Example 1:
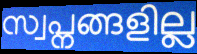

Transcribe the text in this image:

സ്വപ്നങ്ങളില്ല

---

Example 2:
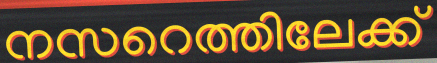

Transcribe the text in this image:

നസറെത്തിലേക്ക്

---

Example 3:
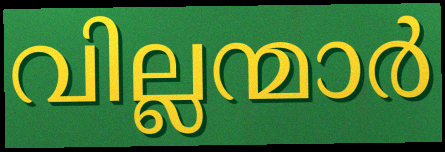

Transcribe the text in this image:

വില്ലന്മാർ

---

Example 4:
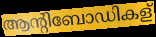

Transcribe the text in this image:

ആന്റിബോഡികള്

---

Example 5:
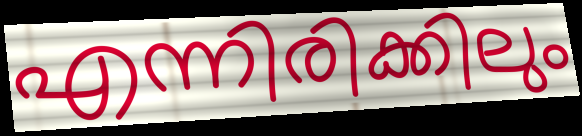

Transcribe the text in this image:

എന്നിരിക്കിലും